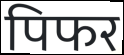
पिफर